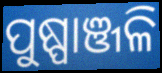
ପୁଷ୍ପାଞ୍ଜଳି